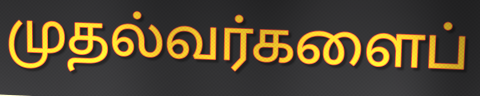
முதல்வர்களைப்